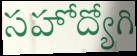
సహోద్యోగి